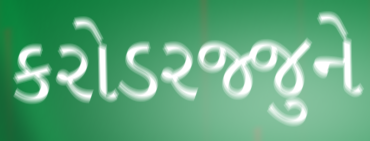
કરોડરજ્જુને